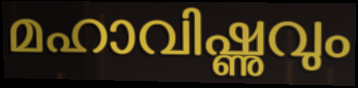
മഹാവിഷ്ണുവും